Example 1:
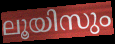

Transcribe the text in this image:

ലൂയിസും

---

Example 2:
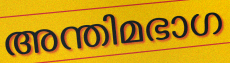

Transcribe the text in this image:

അന്തിമഭാഗ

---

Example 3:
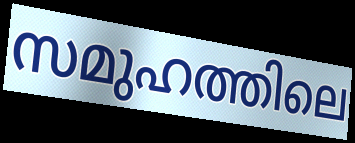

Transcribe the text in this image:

സമുഹത്തിലെ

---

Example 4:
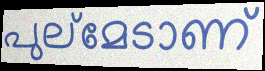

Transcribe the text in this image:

പുല്മേടാണ്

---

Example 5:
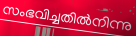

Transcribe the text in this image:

സംഭവിച്ചതിൽനിന്നു